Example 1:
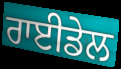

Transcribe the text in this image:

ਰਾਈਡੇਲ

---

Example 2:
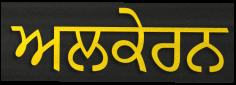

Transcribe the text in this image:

ਅਲਕੇਰਨ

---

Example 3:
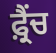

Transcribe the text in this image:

ਫ਼੍ਰੈਂਚ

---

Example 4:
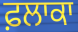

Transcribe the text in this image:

ਫ਼ਲਾਕਾ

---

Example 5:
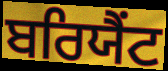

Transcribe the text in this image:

ਬਰਿਯੈਂਟ